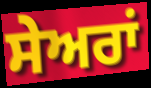
ਸੇਅਰਾਂ